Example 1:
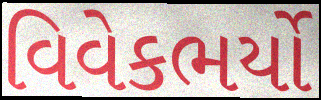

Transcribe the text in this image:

વિવેકભર્યો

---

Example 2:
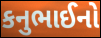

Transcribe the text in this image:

કનુભાઈનો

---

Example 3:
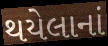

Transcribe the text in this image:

થયેલાનાં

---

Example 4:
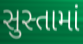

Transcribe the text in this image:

સુસ્તામાં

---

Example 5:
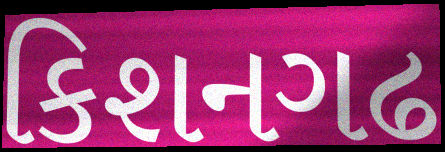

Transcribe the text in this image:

કિશનગઢ